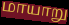
மாயாறு